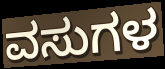
ವಸುಗಳ